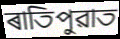
ৰাতিপুৱাত